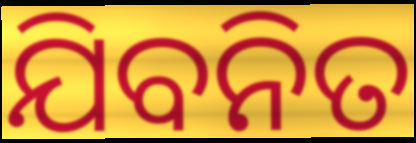
ଯିବନିତ